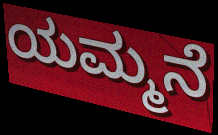
ಯಮ್ಮನೆ